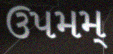
ઉપમમ્